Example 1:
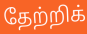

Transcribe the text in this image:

தேற்றிக்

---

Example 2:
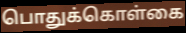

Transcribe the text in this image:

பொதுக்கொள்கை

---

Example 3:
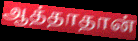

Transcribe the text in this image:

ஆத்தாதான்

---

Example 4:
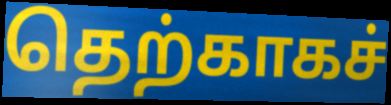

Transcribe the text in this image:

தெற்காகச்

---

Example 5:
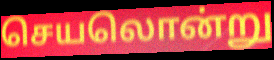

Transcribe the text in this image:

செயலொன்று